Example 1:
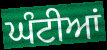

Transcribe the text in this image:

ਘੰਟੀਆਂ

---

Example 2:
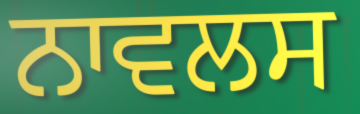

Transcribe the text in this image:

ਨਾਵਲਸ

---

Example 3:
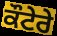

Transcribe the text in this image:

ਕੌਟੇਰੇ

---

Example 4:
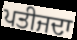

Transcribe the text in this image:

ਪਤੀਜਦਾ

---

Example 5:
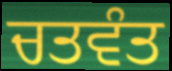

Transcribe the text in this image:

ਚਤਵੰਤ